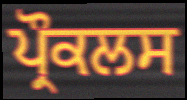
ਪ੍ਰੌਕਲਸ